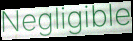
Negligible